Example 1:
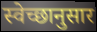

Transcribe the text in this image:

स्वेच्छानुसार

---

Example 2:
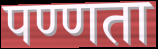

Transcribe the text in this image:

पण्णता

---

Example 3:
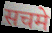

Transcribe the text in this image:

सचमे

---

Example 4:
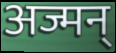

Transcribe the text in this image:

अज्मन्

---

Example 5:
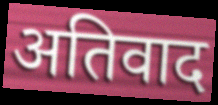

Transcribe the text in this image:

अतिवाद